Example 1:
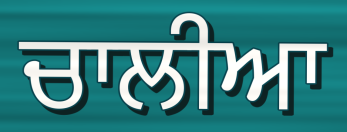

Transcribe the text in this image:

ਚਾਲੀਆ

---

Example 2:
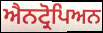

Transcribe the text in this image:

ਐਨਟ੍ਰੋਪਿਅਨ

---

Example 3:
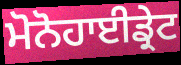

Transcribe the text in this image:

ਮੋਨੋਹਾਈਡ੍ਰੇਟ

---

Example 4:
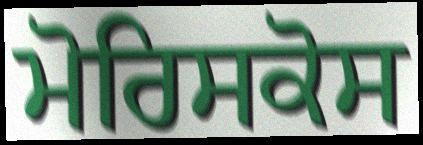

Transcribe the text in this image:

ਮੋਰਿਸਕੋਸ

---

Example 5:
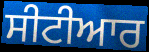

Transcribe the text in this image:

ਸੀਟੀਆਰ